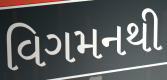
વિગમનથી